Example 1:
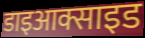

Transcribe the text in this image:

डाइआक्साइड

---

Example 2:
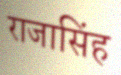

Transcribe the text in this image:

राजासिंह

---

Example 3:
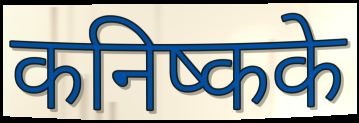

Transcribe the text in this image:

कनिष्कके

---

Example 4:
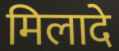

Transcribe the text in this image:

मिलादे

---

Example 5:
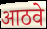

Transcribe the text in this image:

आठवे